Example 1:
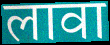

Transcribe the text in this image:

लावा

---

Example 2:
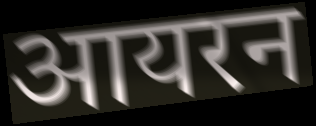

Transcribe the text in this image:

आयरन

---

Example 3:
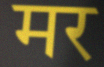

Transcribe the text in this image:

मर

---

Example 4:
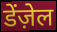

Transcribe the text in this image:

डेंज़ेल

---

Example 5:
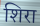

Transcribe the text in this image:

शिरा